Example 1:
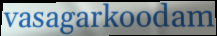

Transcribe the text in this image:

vasagarkoodam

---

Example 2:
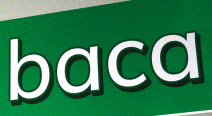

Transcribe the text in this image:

baca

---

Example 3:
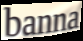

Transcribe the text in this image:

banna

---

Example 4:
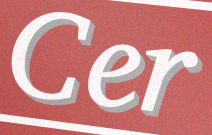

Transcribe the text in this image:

Cer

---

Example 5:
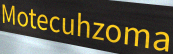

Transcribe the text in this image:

Motecuhzoma